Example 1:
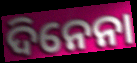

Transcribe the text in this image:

ଦିନେନା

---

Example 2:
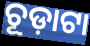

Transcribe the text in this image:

ଚୂଡ଼ାଟା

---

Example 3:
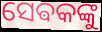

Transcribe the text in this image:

ସେଵକଙ୍କୁ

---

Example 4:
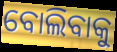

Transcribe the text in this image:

ବୋଲିବାକୁ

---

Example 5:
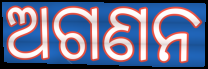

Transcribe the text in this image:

ଅଗଣନ